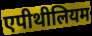
एपीथीलियम